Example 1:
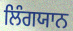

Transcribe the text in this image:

ਲਿੰਗਯਾਨ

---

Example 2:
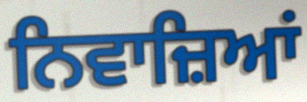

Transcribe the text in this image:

ਨਿਵਾਜ਼ਿਆਂ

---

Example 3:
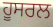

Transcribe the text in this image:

ਹੂਸਰਲ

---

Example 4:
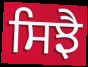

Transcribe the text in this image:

ਸਿਝੈ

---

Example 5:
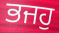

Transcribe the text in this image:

ਭਜਹੁ